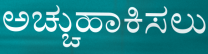
ಅಚ್ಚುಹಾಕಿಸಲು